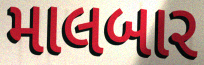
માલબાર